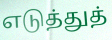
எடுத்துத்